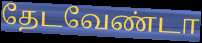
தேடவேண்டா